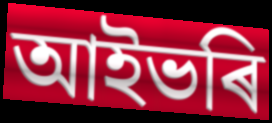
আইভৰি